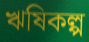
ঋষিকল্প